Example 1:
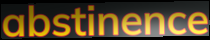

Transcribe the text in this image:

abstinence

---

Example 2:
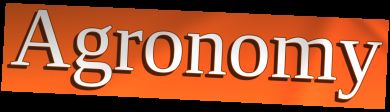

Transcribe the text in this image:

Agronomy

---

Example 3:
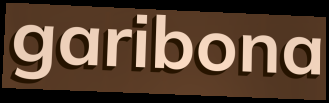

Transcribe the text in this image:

garibona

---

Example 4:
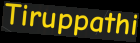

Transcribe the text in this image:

Tiruppathi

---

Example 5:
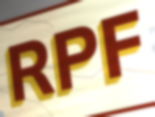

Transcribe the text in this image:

RPF